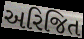
અરિજિત